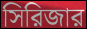
সিরিজার